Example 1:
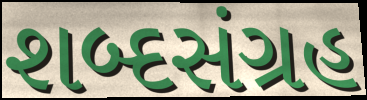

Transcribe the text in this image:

શબ્દસંગ્રહ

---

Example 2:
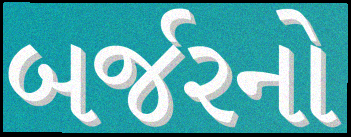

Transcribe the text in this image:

બર્જરનો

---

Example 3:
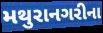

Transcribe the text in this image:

મથુરાનગરીના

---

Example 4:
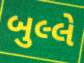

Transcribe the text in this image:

બુલ્લે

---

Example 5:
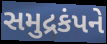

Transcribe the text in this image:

સમુદ્રકંપને